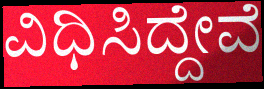
ವಿಧಿಸಿದ್ದೇವೆ